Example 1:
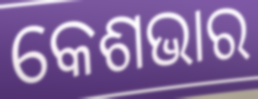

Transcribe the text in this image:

କେଶଭାର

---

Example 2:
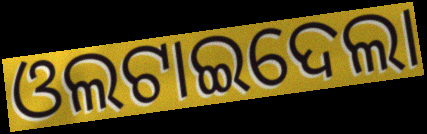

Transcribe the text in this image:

ଓଲଟାଇଦେଲା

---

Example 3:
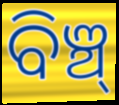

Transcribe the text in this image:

ବିଞ୍ଚ୍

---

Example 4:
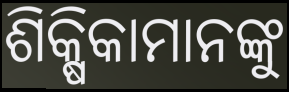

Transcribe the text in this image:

ଶିକ୍ଷିକାମାନଙ୍କୁ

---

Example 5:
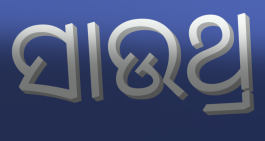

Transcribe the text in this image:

ସାଉଥ୍ର